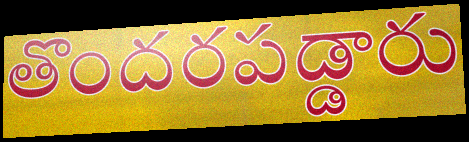
తొందరపడ్డారు